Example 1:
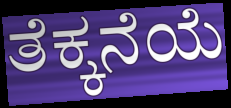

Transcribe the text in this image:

ತೆಕ್ಕನೆಯೆ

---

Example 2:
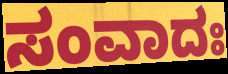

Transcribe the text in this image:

ಸಂವಾದಃ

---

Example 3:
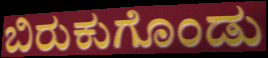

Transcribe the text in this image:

ಬಿರುಕುಗೊಂಡು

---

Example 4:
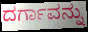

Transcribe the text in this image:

ದರ್ಗಾವನ್ನು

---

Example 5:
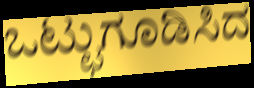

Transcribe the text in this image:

ಒಟ್ಟುಗೂಡಿಸಿದ